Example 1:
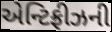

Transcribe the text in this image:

એન્ટિફ્રીઝની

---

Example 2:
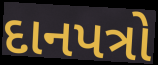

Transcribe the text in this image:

દાનપત્રો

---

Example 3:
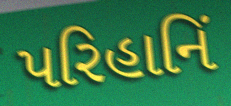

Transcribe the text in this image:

પરિહાનિં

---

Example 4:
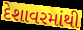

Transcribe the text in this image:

દેશાવરમાંથી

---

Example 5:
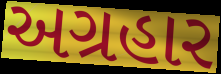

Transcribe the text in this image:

અગ્રહાર